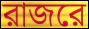
রাজরে